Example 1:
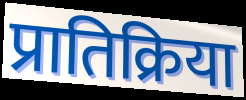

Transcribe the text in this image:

प्रातिक्रिया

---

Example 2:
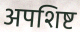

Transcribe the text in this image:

अपशिष्ट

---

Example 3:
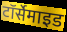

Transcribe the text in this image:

टॉर्सेमाइड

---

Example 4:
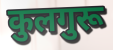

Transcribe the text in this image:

कुलगुरू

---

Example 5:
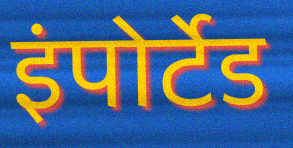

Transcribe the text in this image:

इंपोर्टेड